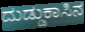
ದುಡ್ಡುಕಾಸಿನ